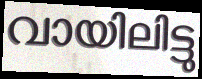
വായിലിട്ടു